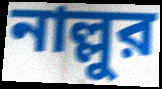
নাল্লুর